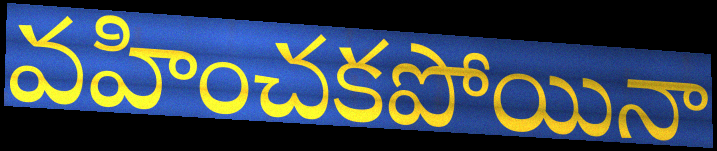
వహించకపోయినా